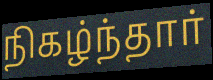
நிகழ்ந்தார்